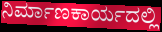
ನಿರ್ಮಾಣಕಾರ್ಯದಲ್ಲಿ